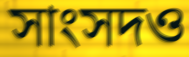
সাংসদও